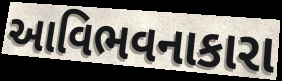
આવિભવનાકારા